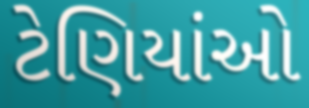
ટેણિયાંઓ